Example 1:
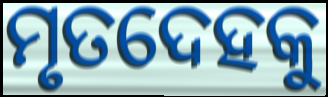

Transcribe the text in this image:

ମୃତଦେହକୁ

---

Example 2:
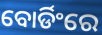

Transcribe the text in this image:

ବୋର୍ଡିଂରେ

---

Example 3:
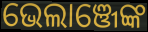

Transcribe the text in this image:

ଭେଲାଞ୍ଜେଙ୍କ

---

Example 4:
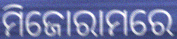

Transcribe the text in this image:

ମିଜୋରାମରେ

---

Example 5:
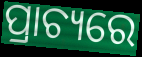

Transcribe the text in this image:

ପ୍ରାଚ୍ୟରେ